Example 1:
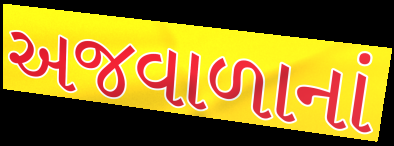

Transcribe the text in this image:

અજવાળાનાં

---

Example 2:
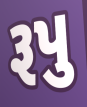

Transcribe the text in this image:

રૂપુ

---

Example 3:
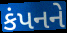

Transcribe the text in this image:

કંપનને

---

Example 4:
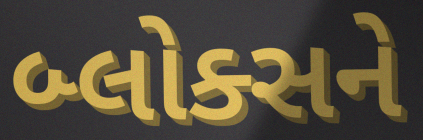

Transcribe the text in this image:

બ્લોક્સને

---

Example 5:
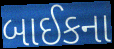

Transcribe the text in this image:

બાઈકના